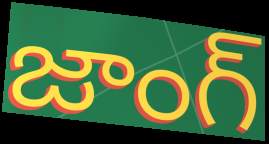
జాంగ్